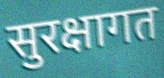
सुरक्षागत